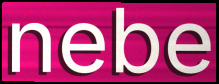
nebe